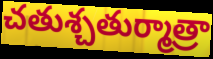
చతుశ్చతుర్మాత్రా